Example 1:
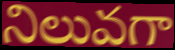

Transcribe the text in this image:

నిలువగా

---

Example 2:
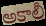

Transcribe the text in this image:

అకాలీ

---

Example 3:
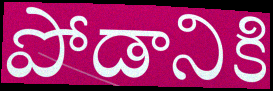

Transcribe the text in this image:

పోడానికి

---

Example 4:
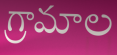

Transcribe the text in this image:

గ్రామాల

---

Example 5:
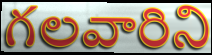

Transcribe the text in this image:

గలవారిని